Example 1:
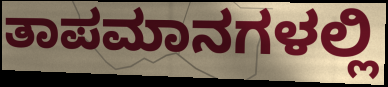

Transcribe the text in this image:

ತಾಪಮಾನಗಳಲ್ಲಿ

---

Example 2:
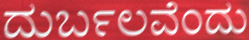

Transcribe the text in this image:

ದುರ್ಬಲವೆಂದು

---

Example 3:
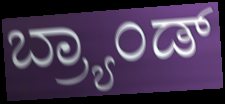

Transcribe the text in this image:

ಬ್ರ್ಯಾಂಡ್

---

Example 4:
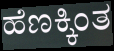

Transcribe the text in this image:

ಹೆಣಕ್ಕಿಂತ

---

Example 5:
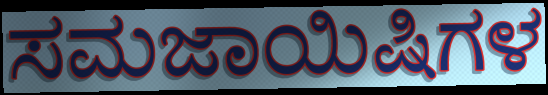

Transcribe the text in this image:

ಸಮಜಾಯಿಷಿಗಳ